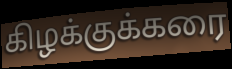
கிழக்குக்கரை